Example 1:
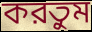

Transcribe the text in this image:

করতুম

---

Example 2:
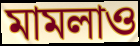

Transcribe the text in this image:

মামলাও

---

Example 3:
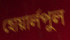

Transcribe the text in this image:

হোয়ার্লপুল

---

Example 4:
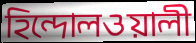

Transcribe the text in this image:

হিন্দোলওয়ালী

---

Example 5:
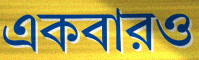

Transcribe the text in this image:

একবারও